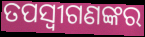
ତପସ୍ୱୀଗଣଙ୍କର